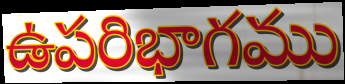
ఉపరిభాగము